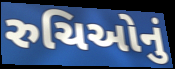
રુચિઓનું